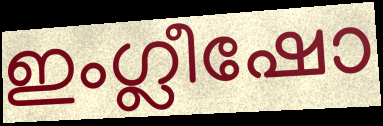
ഇംഗ്ലീഷോ